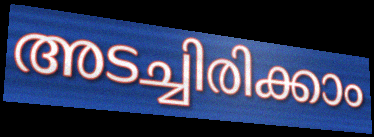
അടച്ചിരിക്കാം